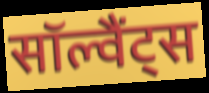
सॉल्वैंट्स